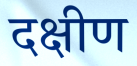
दक्षीण